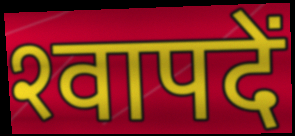
श्वापदें